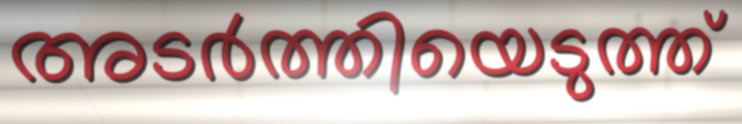
അടർത്തിയെടുത്ത്